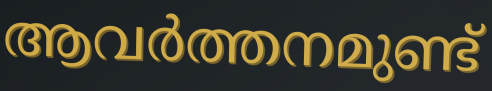
ആവർത്തനമുണ്ട്